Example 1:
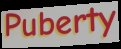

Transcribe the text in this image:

Puberty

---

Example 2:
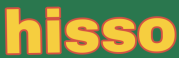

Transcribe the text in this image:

hisso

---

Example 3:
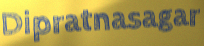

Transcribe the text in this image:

Dipratnasagar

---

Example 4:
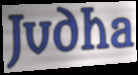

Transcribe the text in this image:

Judha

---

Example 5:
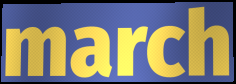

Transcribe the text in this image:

march